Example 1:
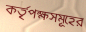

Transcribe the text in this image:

কর্তৃপক্ষসমূহের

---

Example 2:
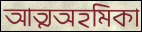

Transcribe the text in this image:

আত্মঅহমিকা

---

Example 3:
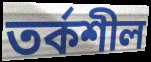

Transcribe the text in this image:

তর্কশীল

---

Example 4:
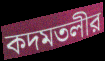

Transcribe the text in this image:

কদমতলীর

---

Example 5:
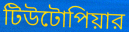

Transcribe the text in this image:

টিউটোপিয়ার